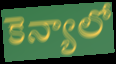
కెన్యాలో